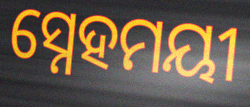
ସ୍ନେହମୟୀ